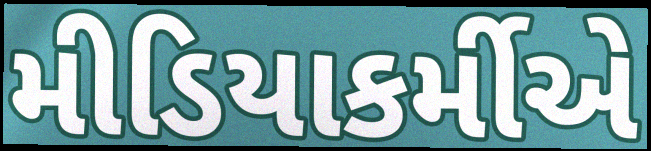
મીડિયાકર્મીએ